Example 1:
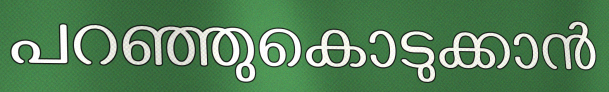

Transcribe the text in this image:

പറഞ്ഞുകൊടുക്കാൻ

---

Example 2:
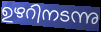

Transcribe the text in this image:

ഉഴറിനടന്നു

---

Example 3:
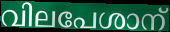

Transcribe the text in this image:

വിലപേശാന്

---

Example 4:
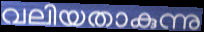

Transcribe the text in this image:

വലിയതാകുന്നു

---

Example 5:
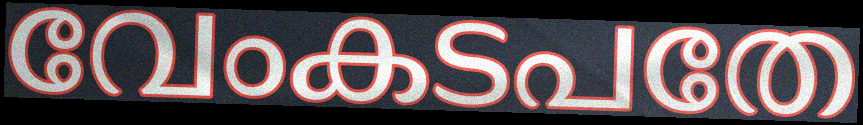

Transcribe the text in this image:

വേംകടപതേ